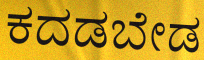
ಕದಡಬೇಡ